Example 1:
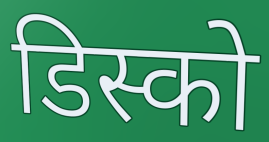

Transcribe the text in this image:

डिस्को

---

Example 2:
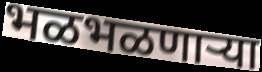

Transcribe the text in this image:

भळभळणाऱ्या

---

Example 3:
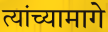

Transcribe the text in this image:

त्यांच्यामागे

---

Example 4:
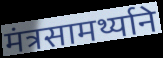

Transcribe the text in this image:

मंत्रसामर्थ्याने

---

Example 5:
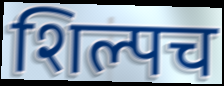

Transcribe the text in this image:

शिल्पच